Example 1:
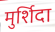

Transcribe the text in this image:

मुर्शिदा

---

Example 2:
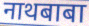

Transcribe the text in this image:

नाथबाबा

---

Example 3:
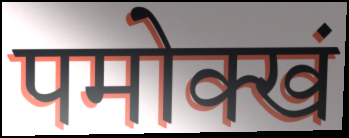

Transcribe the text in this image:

पमोक्खं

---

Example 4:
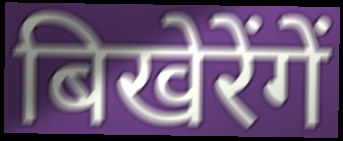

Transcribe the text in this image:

बिखेरेंगें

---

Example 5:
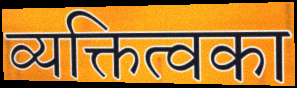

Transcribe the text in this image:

व्यक्तित्वका